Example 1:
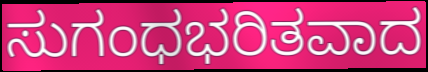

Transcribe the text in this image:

ಸುಗಂಧಭರಿತವಾದ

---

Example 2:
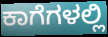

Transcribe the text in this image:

ಕಾಗೆಗಳಲ್ಲಿ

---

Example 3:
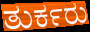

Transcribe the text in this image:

ತುರ್ಕರು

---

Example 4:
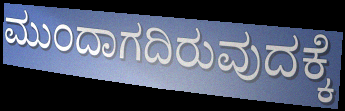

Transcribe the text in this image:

ಮುಂದಾಗದಿರುವುದಕ್ಕೆ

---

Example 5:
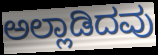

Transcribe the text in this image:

ಅಲ್ಲಾಡಿದವು